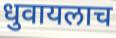
धुवायलाच